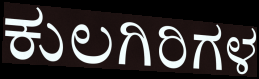
ಕುಲಗಿರಿಗಳ